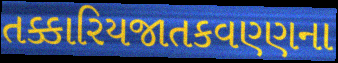
તક્કારિયજાતકવણ્ણના